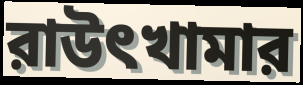
রাউৎখামার